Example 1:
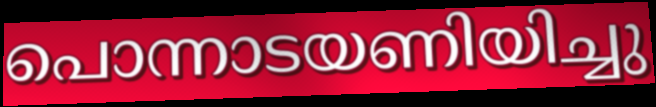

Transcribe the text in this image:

പൊന്നാടയണിയിച്ചു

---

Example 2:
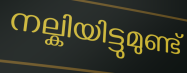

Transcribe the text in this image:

നല്കിയിട്ടുമുണ്ട്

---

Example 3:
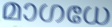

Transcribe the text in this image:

മാഗധേ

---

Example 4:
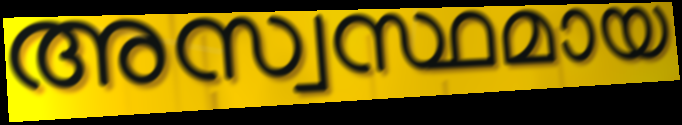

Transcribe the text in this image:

അസ്വസ്ഥമായ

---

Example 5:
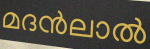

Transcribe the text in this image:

മദൻലാൽ